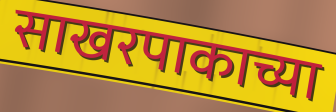
साखरपाकाच्या